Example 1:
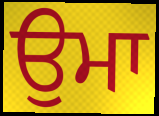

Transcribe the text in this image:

ਉਮਾ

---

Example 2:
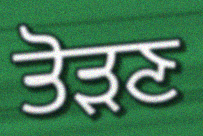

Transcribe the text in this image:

ਤੋੜਣ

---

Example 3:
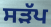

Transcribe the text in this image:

ਸੜੱਪ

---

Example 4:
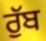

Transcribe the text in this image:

ਰੁੱਬ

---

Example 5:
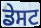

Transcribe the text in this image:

ਡੇਸਟ